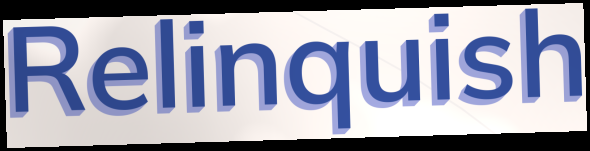
Relinquish